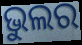
ଭୁଲର